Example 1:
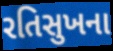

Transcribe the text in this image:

રતિસુખના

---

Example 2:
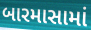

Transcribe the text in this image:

બારમાસામાં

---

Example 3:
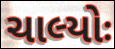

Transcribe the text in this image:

ચાલ્યોઃ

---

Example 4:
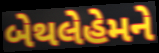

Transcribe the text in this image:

બેથલેહેમને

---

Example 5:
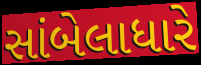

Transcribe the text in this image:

સાંબેલાધારે